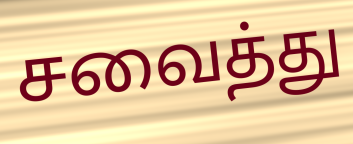
சவைத்து